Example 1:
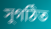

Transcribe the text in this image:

সুগঠিত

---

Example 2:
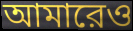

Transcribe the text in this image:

আমারেও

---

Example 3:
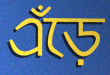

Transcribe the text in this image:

এঁড়ে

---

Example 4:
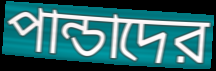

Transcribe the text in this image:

পান্ডাদের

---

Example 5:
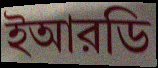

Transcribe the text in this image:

ইআরডি